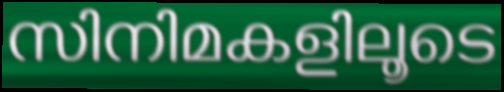
സിനിമകളിലൂടെ